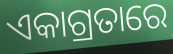
ଏକାଗ୍ରତାରେ